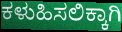
ಕಳುಹಿಸಲಿಕ್ಕಾಗಿ